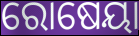
ରୋଷେୟା